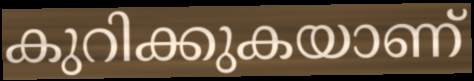
കുറിക്കുകയാണ്